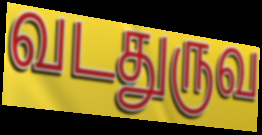
வடதுருவ